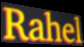
Rahel